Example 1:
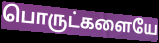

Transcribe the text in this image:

பொருட்களையே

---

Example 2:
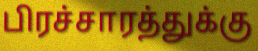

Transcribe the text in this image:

பிரச்சாரத்துக்கு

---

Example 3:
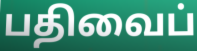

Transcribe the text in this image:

பதிவைப்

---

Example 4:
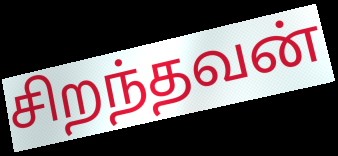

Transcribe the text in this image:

சிறந்தவன்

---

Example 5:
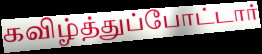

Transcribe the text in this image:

கவிழ்த்துப்போட்டார்